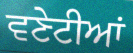
ਵਣੇਟੀਆਂ